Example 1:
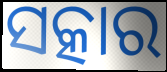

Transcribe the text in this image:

ସତ୍କାର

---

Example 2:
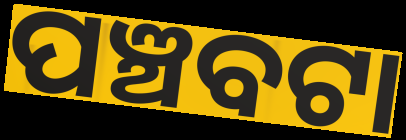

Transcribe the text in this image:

ପଞ୍ଚବଟା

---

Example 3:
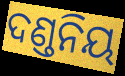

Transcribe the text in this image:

ଦଣ୍ଡନିୟ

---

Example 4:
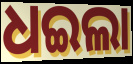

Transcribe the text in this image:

ଧଇଲା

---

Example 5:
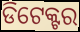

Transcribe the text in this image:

ଡିଟେକ୍ଟର